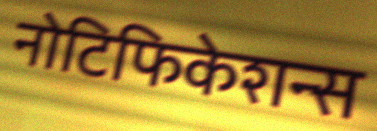
नोटिफिकेशन्स